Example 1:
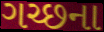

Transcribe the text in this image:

ગચ્છના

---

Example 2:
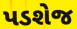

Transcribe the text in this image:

પડશેજ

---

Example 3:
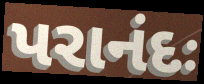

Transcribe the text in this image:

પરાનંદઃ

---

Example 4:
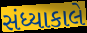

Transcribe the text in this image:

સંધ્યાકાલે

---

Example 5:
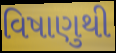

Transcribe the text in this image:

વિષાણુથી